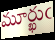
మూర్ఖుఁ